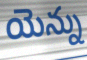
యెన్ను